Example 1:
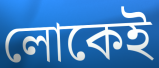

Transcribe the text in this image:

লোকেই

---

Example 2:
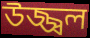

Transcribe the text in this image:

উজ্জ্বল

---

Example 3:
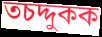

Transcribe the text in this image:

তচদ্দুকক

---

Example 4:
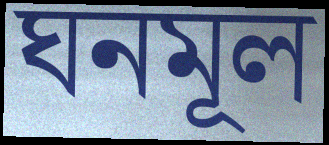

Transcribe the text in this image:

ঘনমূল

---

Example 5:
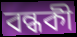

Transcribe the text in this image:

বন্ধকী